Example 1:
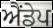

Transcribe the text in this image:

ਐਂਡੇਪ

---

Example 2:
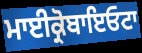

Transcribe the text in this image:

ਮਾਈਕ੍ਰੋਬਾਇਓਟਾ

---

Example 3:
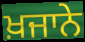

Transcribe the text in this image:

ਖ਼ਜਾਨੇ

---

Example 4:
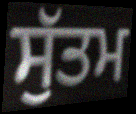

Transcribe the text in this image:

ਸੁੱਤਮ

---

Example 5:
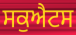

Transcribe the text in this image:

ਸਕੁਐਟਸ